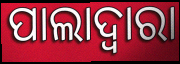
ପାଲାଦ୍ୱାରା